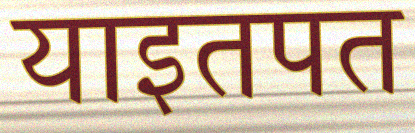
याइतपत